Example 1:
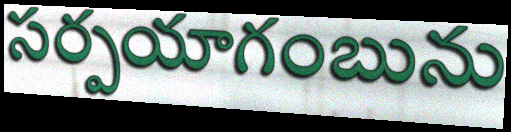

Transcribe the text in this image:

సర్పయాగంబును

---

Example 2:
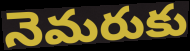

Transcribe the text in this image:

నెమరుకు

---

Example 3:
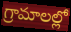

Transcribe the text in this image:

గ్రామాలల్లో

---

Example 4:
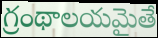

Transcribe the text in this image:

గ్రంథాలయమైతే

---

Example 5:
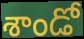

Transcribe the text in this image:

శాండో